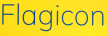
Flagicon